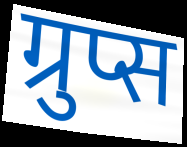
ग्रुप्स